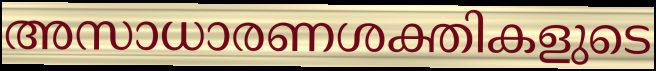
അസാധാരണശക്തികളുടെ